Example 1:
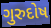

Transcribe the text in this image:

ગુરુદોષ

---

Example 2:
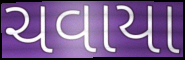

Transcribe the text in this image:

ચવાયા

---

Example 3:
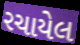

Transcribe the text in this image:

રચાયેલ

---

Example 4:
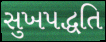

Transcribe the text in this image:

સુખપદ્ધતિ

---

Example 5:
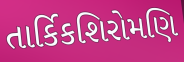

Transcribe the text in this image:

તાર્કિકશિરોમણિ